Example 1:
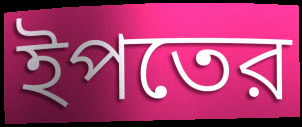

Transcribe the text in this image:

ইপতের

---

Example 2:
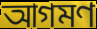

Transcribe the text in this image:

আগমণ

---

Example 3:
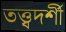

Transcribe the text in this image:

তত্ত্বদর্শী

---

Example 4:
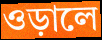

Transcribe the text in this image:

ওড়ালে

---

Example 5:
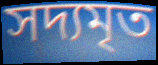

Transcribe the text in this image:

সদ্যমৃত